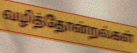
வழித்தோன்றல்கள்